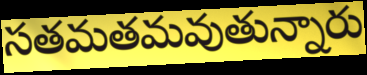
సతమతమవుతున్నారు